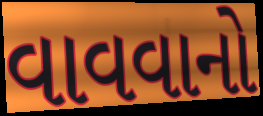
વાવવાનો